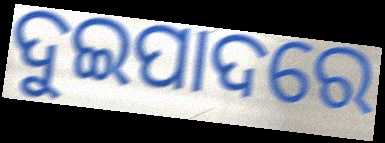
ଦୁଇପାଦରେ